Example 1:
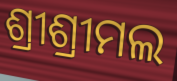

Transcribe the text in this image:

ଶ୍ରୀଶ୍ରୀମଲ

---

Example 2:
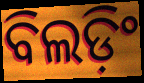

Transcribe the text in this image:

ବିଲଡ଼ିଂ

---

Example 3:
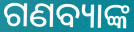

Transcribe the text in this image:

ଗଣବ୍ୟାଙ୍କ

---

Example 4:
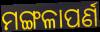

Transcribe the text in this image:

ମଙ୍ଗଳାପର୍ଣ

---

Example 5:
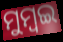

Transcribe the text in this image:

ମୁମ୍ବଇ